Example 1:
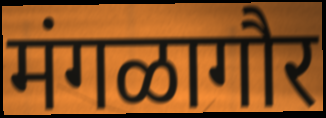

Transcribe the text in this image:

मंगळागौर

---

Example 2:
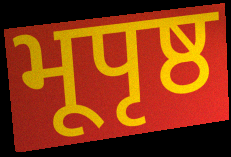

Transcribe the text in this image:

भूपृष्ठ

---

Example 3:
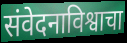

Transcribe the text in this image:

संवेदनाविश्वाचा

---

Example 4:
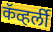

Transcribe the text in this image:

कॅव्हर्ली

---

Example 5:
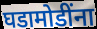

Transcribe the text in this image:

घडामोडींना